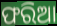
ଫରିଆ